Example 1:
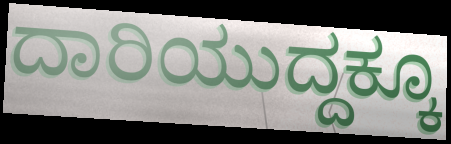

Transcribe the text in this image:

ದಾರಿಯುದ್ದಕ್ಕೂ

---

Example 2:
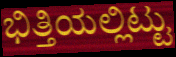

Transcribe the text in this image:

ಭಿತ್ತಿಯಲ್ಲಿಟ್ಟು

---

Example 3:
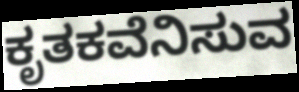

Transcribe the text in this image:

ಕೃತಕವೆನಿಸುವ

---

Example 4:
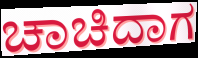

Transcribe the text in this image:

ಚಾಚಿದಾಗ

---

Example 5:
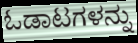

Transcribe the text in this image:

ಓಡಾಟಗಳನ್ನು